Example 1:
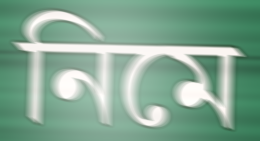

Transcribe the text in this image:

নিমে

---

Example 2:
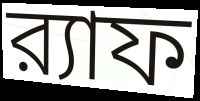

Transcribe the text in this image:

র‍্যাফ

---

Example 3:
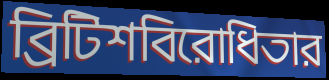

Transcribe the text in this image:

ব্রিটিশবিরোধিতার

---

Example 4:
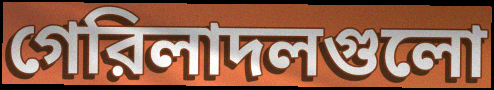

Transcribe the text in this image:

গেরিলাদলগুলো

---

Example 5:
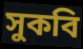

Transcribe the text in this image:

সুকবি